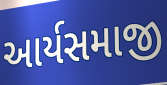
આર્યસમાજી